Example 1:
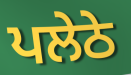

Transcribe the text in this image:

ਪਲੇਠੇ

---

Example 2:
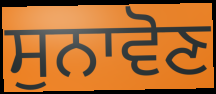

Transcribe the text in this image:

ਸੁਨਾਵੋਣ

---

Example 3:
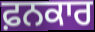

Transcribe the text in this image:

ਫ਼ਨਕਾਰ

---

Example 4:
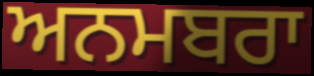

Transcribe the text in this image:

ਅਨਮਬਰਾ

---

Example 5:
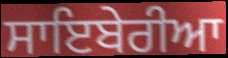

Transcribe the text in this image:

ਸਾਇਬੇਰੀਆ